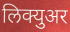
लिक्युअर